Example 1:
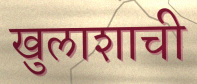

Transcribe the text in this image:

खुलाशाची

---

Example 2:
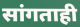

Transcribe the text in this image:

सांगताही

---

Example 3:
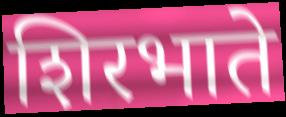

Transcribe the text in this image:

शिरभाते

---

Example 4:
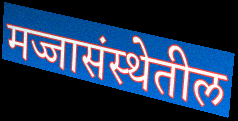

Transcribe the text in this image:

मज्जासंस्थेतील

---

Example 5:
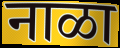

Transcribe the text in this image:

नाळा